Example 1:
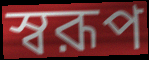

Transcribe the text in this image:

স্বরূপ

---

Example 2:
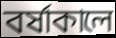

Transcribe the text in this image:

বর্ষাকালে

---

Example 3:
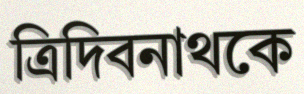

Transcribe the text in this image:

ত্রিদিবনাথকে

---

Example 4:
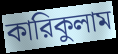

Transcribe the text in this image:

কারিকুলাম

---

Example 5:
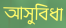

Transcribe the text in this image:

আসুবিধা